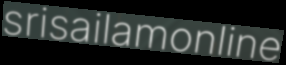
srisailamonline